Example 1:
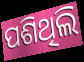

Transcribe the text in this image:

ପଶିଥିଲି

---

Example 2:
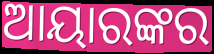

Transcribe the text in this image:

ଆୟାରଙ୍କର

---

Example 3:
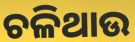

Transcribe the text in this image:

ଚଳିଥାଉ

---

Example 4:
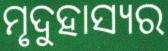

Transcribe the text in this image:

ମୃଦୁହାସ୍ୟର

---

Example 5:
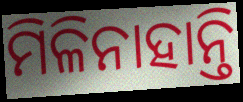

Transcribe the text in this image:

ମିଳିନାହାନ୍ତି